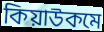
কিয়াউকমে